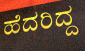
ಹೆದರಿದ್ದ